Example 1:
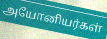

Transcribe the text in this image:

அயோனியர்கள்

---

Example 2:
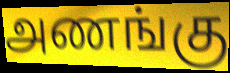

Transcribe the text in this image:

அணங்கு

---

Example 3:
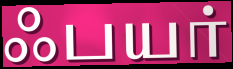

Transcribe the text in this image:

ஃபயர்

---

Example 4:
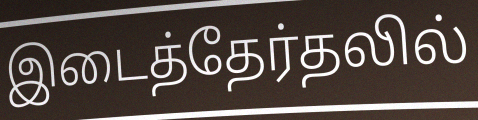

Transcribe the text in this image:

இடைத்தேர்தலில்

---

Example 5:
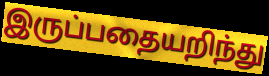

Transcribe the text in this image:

இருப்பதையறிந்து